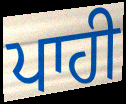
ਪਾਹੀ